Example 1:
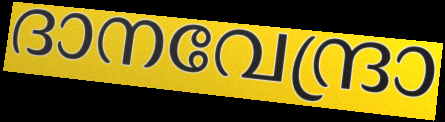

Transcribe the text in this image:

ദാനവേന്ദ്രാ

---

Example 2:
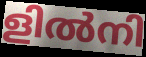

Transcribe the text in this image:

ളിൽനി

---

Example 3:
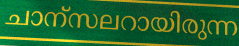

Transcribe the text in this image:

ചാന്സലറായിരുന്ന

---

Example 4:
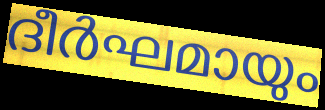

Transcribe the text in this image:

ദീർഘമായും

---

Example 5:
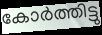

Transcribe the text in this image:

കോർത്തിട്ടു